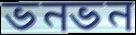
ভনভন